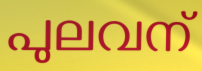
പുലവന്